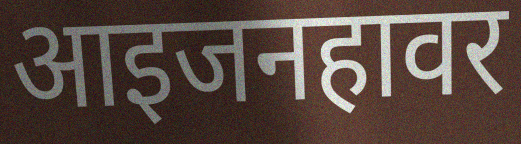
आइजनहावर